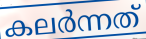
കലർന്നത്